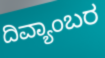
ದಿವ್ಯಾಂಬರ